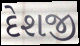
દેશજી